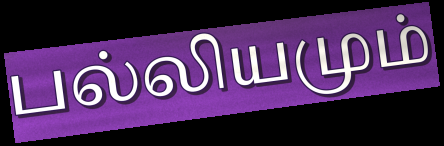
பல்லியமும்